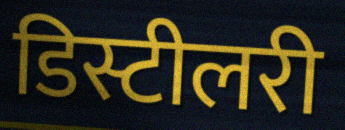
डिस्टीलरी